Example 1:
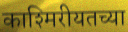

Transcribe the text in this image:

काश्मिरीयतच्या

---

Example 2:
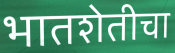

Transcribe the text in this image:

भातशेतीचा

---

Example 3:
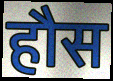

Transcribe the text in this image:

हौस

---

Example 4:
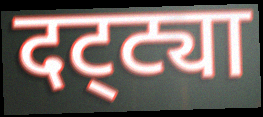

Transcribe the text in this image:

दट्ट्या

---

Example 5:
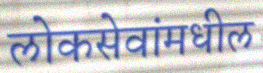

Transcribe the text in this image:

लोकसेवांमधील